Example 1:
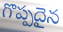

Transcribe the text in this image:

గొప్పదైన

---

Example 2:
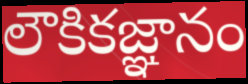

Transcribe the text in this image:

లౌకికజ్ఞానం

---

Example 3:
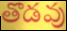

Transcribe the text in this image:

తొడవు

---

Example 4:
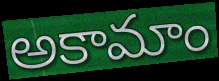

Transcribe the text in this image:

అకామాం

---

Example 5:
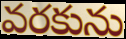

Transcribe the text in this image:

వరకును